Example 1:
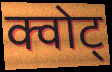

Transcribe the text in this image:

क्वोट्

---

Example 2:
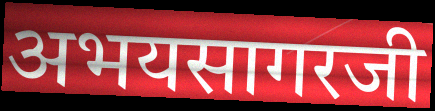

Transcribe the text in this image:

अभयसागरजी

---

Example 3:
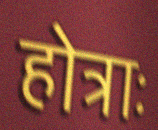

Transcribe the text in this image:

होत्राः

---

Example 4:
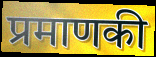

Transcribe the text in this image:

प्रमाणकी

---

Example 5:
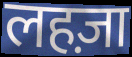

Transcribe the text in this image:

लहज़ा